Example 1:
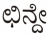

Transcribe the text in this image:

ಛಿನ್ದೇ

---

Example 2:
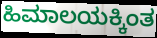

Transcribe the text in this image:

ಹಿಮಾಲಯಕ್ಕಿಂತ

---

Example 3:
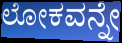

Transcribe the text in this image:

ಲೋಕವನ್ನೇ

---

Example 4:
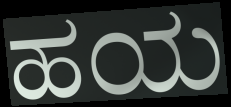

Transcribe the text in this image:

ಹಯ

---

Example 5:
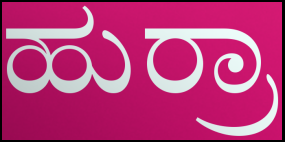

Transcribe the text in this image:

ಹುರ್ರಾ